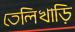
তেলিখাড়ি